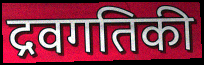
द्रवगतिकी